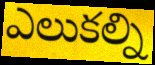
ఎలుకల్ని